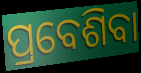
ପ୍ରବେଶିବା